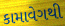
કામાવેગથી